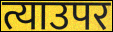
त्याउपर